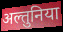
अल्तुनिया